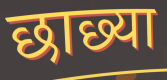
छाछ्या